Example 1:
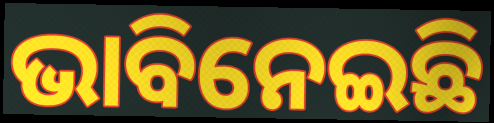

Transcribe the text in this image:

ଭାବିନେଇଛି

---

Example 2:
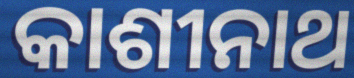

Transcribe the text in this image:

କାଶୀନାଥ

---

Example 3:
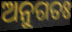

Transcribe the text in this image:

ଅନୁଗତଃ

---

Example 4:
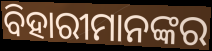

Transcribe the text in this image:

ବିହାରୀମାନଙ୍କର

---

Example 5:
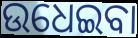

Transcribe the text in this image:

ଉଧେଇବା